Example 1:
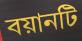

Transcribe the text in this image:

বয়ানটি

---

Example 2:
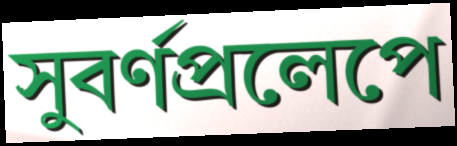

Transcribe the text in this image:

সুবর্ণপ্রলেপে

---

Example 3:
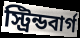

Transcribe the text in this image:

স্ট্রিন্ডবার্গ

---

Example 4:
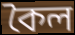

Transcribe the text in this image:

কৈল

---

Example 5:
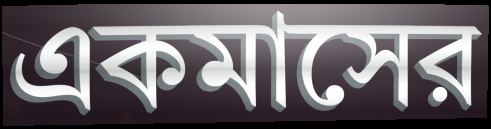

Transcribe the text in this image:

একমাসের